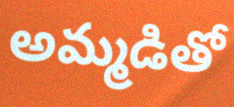
అమ్మడితో